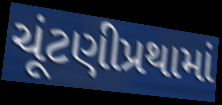
ચૂંટણીપ્રથામાં